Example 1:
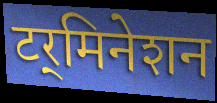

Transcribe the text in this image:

टर्मिनेशन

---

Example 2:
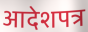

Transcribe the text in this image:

आदेशपत्र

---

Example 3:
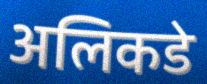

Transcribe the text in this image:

अलिकडे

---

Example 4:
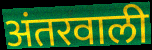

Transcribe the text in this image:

अंतरवाली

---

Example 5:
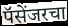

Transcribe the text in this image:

पॅसेंजरचा